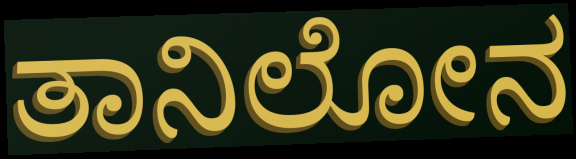
ತಾನಿಲೋನ